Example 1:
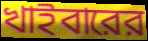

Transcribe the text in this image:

খাইবারের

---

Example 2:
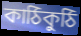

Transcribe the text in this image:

কাঠিকুঠি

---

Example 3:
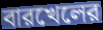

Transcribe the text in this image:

বারখেলের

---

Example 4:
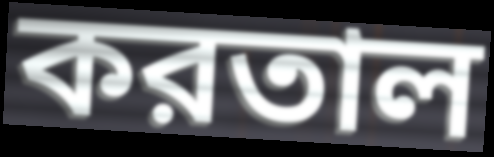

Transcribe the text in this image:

করতাল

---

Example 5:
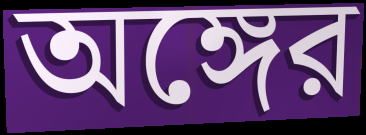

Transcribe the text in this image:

অঙ্গের